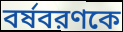
বর্ষবরণকে